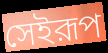
সেইরূপ